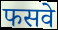
फसवे